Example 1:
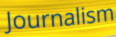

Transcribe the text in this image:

Journalism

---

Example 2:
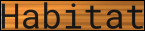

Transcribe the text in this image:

Habitat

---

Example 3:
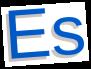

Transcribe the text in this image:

Es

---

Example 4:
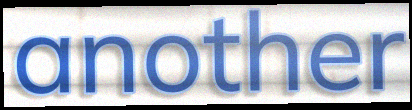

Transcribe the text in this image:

another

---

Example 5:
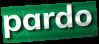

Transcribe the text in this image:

pardo